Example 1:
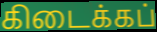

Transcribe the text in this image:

கிடைக்கப்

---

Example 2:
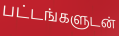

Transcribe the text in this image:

பட்டங்களுடன்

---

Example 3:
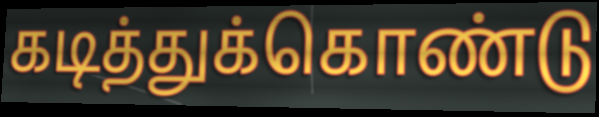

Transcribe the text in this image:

கடித்துக்கொண்டு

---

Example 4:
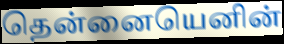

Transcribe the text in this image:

தென்னையெனின்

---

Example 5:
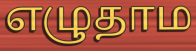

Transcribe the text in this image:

எழுதாம